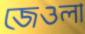
জেওলা